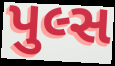
પુલ્સ